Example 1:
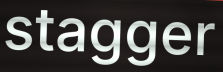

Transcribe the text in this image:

stagger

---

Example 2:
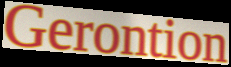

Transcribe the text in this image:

Gerontion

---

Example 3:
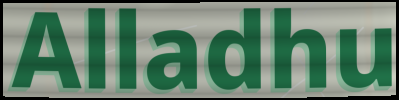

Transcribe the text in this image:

Alladhu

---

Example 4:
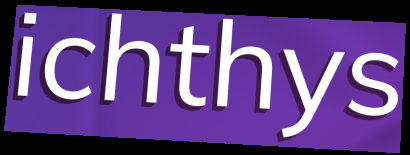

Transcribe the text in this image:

ichthys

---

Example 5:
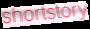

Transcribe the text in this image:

shortstory